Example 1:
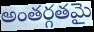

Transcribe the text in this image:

అంతర్గతమై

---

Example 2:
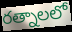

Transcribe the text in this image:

రత్నాలలో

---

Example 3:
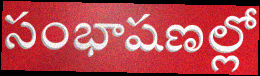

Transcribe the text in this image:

సంభాషణల్లో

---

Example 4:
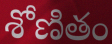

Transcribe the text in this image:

శోణితం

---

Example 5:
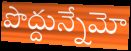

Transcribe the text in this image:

పొద్దున్నేమో